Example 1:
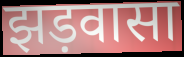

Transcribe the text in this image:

झड़वासा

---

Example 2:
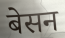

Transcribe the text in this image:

बेसन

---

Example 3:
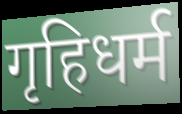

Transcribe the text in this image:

गृहिधर्म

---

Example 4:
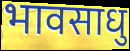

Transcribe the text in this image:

भावसाधु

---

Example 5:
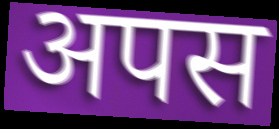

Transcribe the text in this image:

अपस